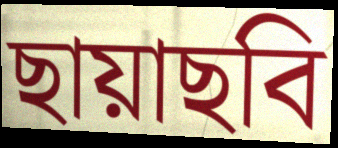
ছায়াছবি